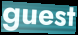
guest